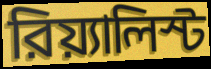
রিয়্যালিস্ট